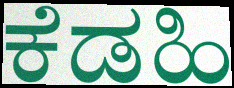
ಕೆಡಹಿ